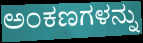
ಅಂಕಣಗಳನ್ನು